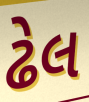
ઢેલ